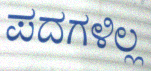
ಪದಗಳಿಲ್ಲ